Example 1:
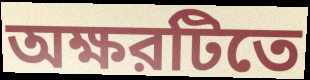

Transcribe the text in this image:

অক্ষরটিতে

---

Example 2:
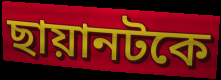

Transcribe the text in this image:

ছায়ানটকে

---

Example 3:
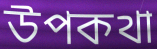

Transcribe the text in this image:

উপকথা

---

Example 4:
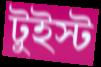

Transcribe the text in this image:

টুইস্ট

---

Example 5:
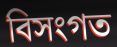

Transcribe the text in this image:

বিসংগত